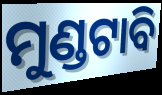
ମୁଣ୍ଡଟାବି